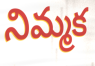
నిమ్మక